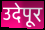
उदेपूर